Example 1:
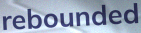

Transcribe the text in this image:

rebounded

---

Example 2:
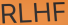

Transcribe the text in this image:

RLHF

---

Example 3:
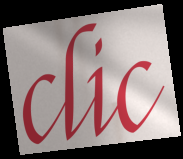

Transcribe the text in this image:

clic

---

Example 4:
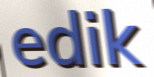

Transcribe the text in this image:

edik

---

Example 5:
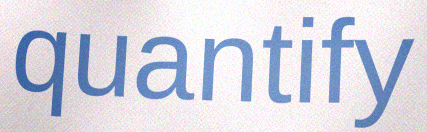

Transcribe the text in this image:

quantify